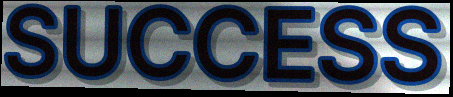
SUCCESS